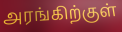
அரங்கிற்குள்